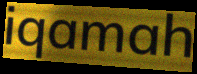
iqamah